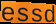
essd